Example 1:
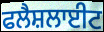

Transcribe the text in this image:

ਫਲੈਸ਼ਲਾਈਟ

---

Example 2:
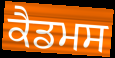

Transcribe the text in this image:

ਕੈਡਮਸ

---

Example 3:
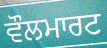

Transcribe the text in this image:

ਵੌਲਮਾਰਟ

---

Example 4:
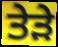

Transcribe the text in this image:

ਤੇੜੇ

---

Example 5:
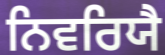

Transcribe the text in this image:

ਨਿਵਰਿਯੈ